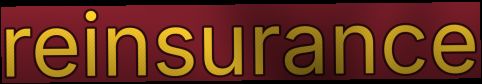
reinsurance